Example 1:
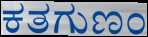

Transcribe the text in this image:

ಕತಗುಣಂ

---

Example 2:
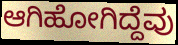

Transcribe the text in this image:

ಆಗಿಹೋಗಿದ್ದೆವು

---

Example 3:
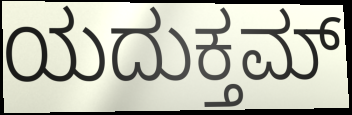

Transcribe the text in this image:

ಯದುಕ್ತಮ್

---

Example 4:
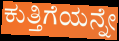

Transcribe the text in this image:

ಕುತ್ತಿಗೆಯನ್ನೇ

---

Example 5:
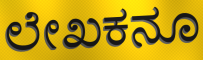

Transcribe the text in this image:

ಲೇಖಕನೂ